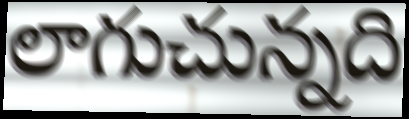
లాగుచున్నది